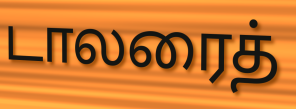
டாலரைத்